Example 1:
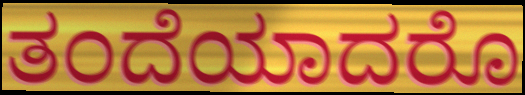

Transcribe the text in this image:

ತಂದೆಯಾದರೊ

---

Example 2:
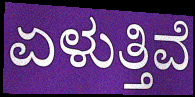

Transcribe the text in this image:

ಏಳುತ್ತಿವೆ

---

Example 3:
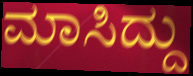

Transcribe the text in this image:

ಮಾಸಿದ್ದು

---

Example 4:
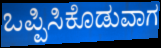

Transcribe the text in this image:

ಒಪ್ಪಿಸಿಕೊಡುವಾಗ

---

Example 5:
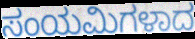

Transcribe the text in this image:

ಸಂಯಮಿಗಳಾದ